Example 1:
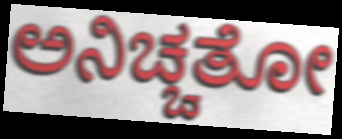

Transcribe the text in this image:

ಅನಿಚ್ಚತೋ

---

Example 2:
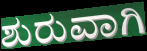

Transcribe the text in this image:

ಶುರುವಾಗಿ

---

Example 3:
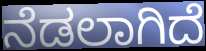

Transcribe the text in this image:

ನೆಡಲಾಗಿದೆ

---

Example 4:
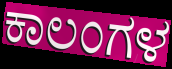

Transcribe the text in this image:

ಕಾಲಂಗಳ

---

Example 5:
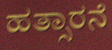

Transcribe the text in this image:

ಹತ್ಸಾರನೆ